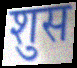
शुस